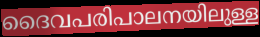
ദൈവപരിപാലനയിലുള്ള